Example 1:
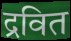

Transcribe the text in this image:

द्रवित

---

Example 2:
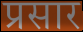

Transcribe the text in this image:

प्रसार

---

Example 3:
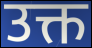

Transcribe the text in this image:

उक्त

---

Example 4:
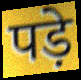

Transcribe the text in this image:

पड़े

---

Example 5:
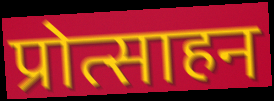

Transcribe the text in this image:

प्रोत्साहन